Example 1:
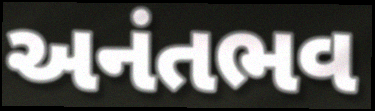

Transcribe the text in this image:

અનંતભવ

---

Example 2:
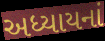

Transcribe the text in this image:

અધ્યાયનાં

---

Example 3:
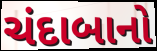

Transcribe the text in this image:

ચંદાબાનો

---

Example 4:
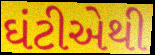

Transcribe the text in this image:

ઘંટીએથી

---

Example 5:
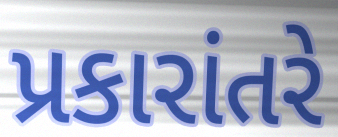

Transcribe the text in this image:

પ્રકારાંતરે